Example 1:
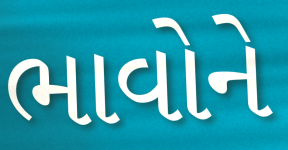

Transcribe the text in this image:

ભાવોને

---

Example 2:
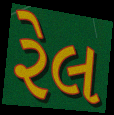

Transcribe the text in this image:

રેલ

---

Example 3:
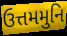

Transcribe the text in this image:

ઉત્તમમુનિ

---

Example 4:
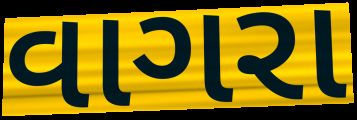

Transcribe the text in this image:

વાગરા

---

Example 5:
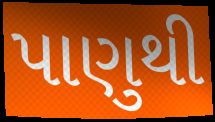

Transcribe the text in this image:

પાણુથી